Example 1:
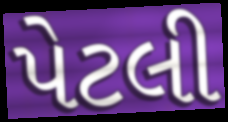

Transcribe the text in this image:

પેટલી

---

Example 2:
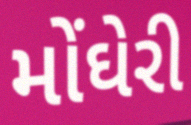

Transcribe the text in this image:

મોંઘેરી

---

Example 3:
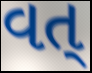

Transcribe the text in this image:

વત્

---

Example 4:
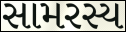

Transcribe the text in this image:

સામરસ્ય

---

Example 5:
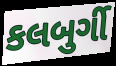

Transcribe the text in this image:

કલબુર્ગી